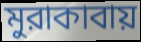
মুরাকাবায়